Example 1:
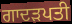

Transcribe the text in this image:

ਗਾਦੜਪਤੀ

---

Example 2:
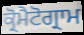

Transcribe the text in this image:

ਕ੍ਰੋਮੈਟੋਗ੍ਰਾਮ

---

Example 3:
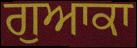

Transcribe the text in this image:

ਗੁਆਕਾ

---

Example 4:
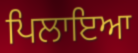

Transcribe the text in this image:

ਪਿਲਾਇਆ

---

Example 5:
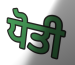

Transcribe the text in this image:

ਧੋਤੀ